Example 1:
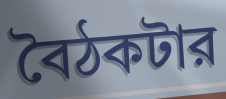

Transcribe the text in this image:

বৈঠকটার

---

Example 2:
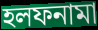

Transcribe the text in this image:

হলফনামা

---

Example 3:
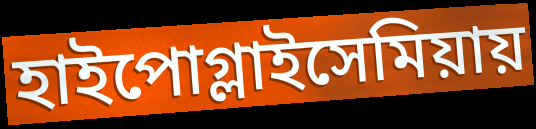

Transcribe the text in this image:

হাইপোগ্লাইসেমিয়ায়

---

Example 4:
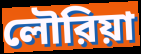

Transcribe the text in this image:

লৌরিয়া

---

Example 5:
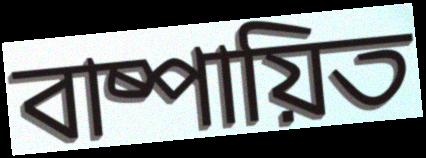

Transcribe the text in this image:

বাষ্পায়িত